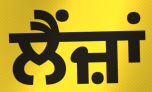
ਲੈਂਜ਼ਾਂ